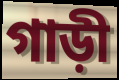
গাড়ী